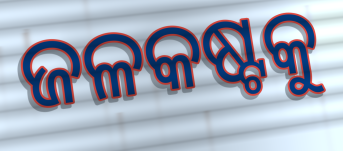
ଜଳକଷ୍ଟକୁ